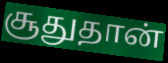
சூதுதான்